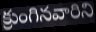
క్రుంగినవారిని